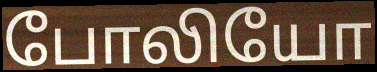
போலியோ